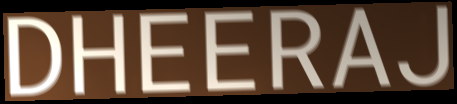
DHEERAJ